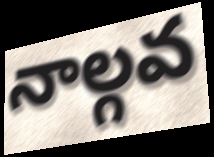
నాల్గవ